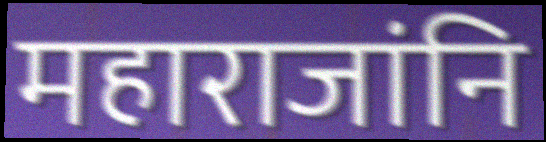
महाराजांनि